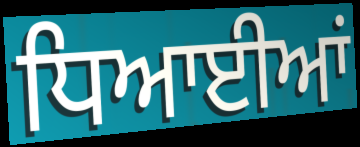
ਧਿਆਈਆਂ